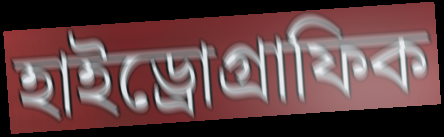
হাইড্রোগ্রাফিক